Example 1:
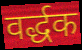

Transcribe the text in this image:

वर्द्धक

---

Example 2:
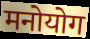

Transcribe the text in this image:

मनोयोग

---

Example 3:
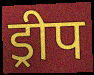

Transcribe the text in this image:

ड्रीप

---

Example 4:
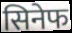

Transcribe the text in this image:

सिनेफ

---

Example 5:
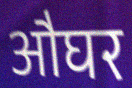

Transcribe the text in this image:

औघर